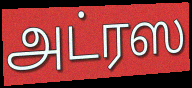
அட்ரஸ